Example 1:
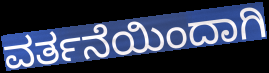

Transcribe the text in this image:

ವರ್ತನೆಯಿಂದಾಗಿ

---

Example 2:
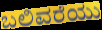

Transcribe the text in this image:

ಬಲಿವರೆಯು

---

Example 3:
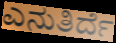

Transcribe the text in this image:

ಎನುತಿರ್ದೆ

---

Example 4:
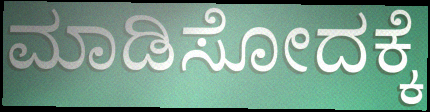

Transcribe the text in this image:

ಮಾಡಿಸೋದಕ್ಕೆ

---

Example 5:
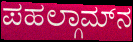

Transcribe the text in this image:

ಪಹಲ್ಗಾಮ್‌ನ